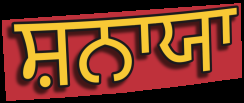
ਸ਼ਨਾਯਾ